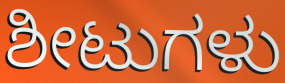
ಶೀಟುಗಳು